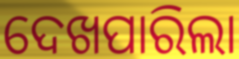
ଦେଖପାରିଲା